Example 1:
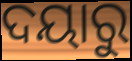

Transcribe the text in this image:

ଦୟାରୁ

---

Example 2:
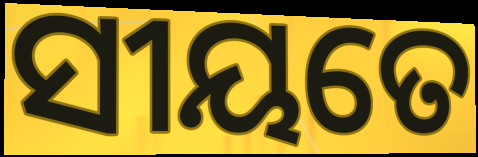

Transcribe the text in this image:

ସୀୟତେ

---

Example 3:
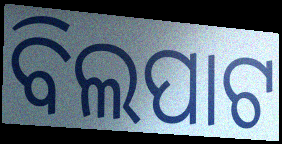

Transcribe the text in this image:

ବିଲପାଟ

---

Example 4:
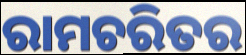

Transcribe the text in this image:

ରାମଚରିତର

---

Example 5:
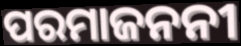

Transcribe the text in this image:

ପରମାଜନନୀ